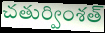
చతుర్వింశత్